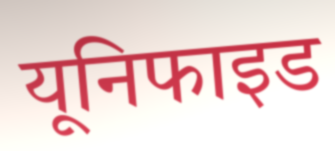
यूनिफाइड